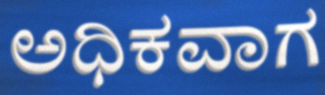
ಅಧಿಕವಾಗ